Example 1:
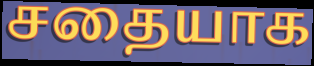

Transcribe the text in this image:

சதையாக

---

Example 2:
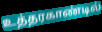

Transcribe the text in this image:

உத்தரகாண்டில்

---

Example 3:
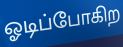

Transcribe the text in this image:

ஓடிப்போகிற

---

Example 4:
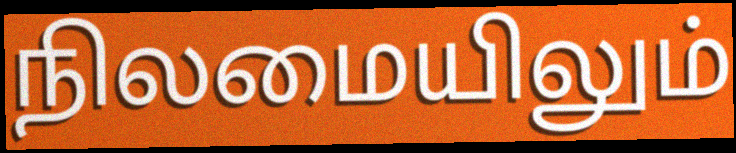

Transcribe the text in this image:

நிலமையிலும்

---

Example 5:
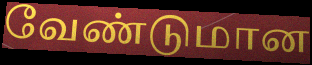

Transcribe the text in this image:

வேண்டுமான